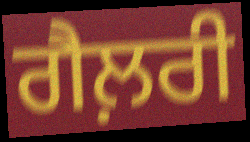
ਗੈਲ਼ਰੀ